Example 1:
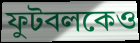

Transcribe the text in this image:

ফুটবলকেও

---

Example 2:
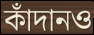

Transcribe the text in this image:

কাঁদানও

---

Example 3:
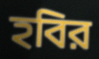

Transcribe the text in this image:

হবির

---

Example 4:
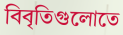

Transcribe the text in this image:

বিবৃতিগুলোতে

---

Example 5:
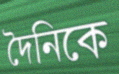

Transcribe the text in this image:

দৈনিকে